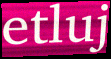
etluj